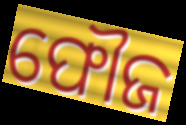
ଫୌଜ